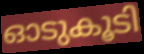
ഓടുകൂടി